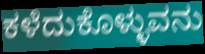
ಕಳೆದುಕೊಳ್ಳುವನು